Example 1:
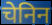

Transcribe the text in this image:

चेनिन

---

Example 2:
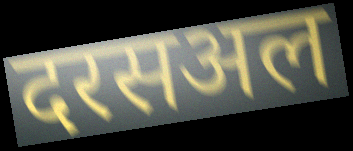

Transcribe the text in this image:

दरसअल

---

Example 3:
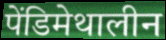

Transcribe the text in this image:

पेंडिमेथालीन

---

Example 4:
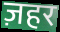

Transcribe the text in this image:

ज़हर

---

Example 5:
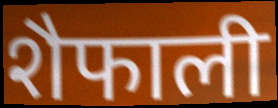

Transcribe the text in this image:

शैफाली